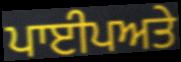
ਪਾਈਪਅਤੇ